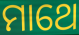
ମାଥେ